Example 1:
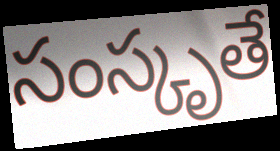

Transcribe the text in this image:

సంస్కృతే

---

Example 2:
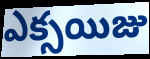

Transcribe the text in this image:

ఎక్సయిజు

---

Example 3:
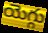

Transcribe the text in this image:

యెగ్గు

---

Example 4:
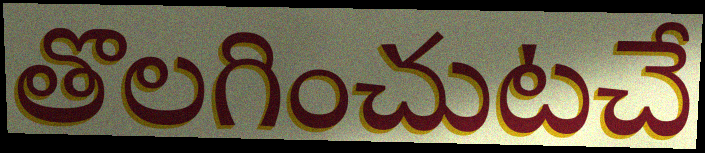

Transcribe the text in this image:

తొలగించుటచే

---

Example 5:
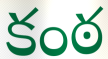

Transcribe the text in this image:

కంఠ